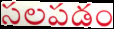
సలపడం